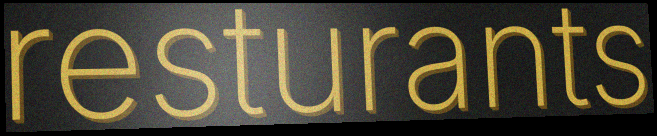
resturants